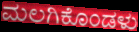
ಮಲಗಿಕೊಂಡಳು